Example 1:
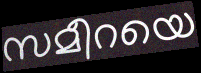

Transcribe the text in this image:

സമീറയെ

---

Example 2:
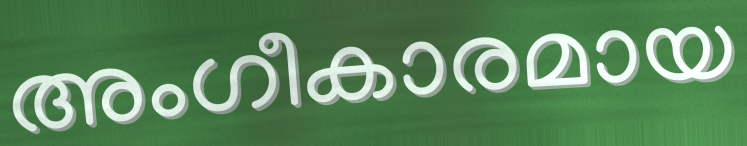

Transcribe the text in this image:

അംഗീകാരമായ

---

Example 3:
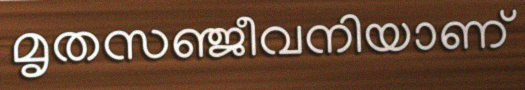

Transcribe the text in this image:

മൃതസഞ്ജീവനിയാണ്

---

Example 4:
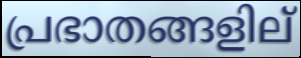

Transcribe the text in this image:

പ്രഭാതങ്ങളില്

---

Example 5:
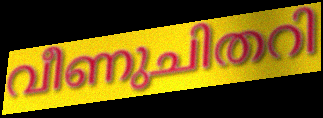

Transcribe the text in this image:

വീണുചിതറി